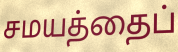
சமயத்தைப்